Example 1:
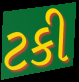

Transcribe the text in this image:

ટકી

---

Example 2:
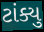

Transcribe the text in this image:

ટાંક્યુ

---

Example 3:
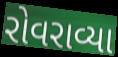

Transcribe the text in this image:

રોવરાવ્યા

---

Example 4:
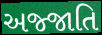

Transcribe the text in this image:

અજ્જાતિ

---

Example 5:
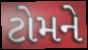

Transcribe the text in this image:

ટોમને